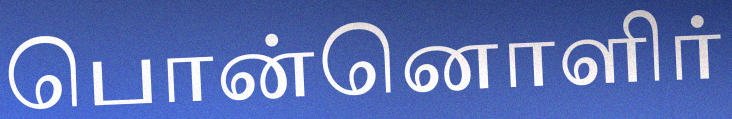
பொன்னொளிர்